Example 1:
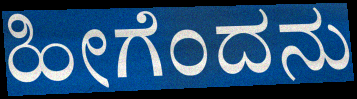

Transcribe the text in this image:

ಹೀಗೆಂದನು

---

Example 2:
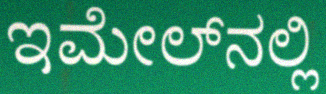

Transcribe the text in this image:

ಇಮೇಲ್‌ನಲ್ಲಿ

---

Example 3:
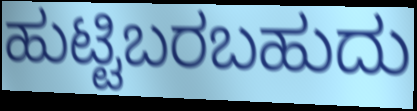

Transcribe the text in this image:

ಹುಟ್ಟಿಬರಬಹುದು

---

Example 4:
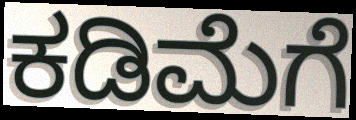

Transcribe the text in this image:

ಕಡಿಮೆಗೆ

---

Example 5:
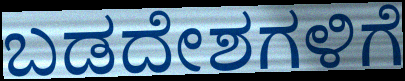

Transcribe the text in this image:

ಬಡದೇಶಗಳಿಗೆ